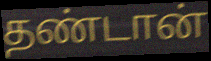
தண்டான்